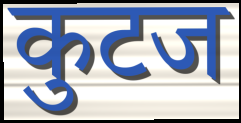
कुटज